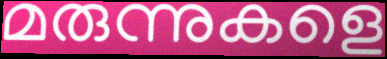
മരുന്നുകളെ